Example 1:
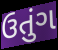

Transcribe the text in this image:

ઉતુંગ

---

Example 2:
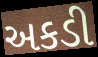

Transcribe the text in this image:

અકડી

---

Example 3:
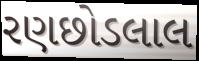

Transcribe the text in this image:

રણછોડલાલ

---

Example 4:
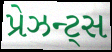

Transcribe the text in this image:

પ્રેઝન્ટ્સ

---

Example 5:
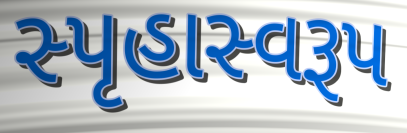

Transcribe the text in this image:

સ્પૃહાસ્વરૂપ